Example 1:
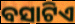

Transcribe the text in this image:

ବସାଟିଏ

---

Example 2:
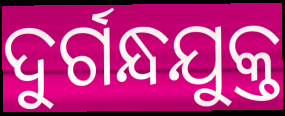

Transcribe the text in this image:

ଦୁର୍ଗନ୍ଧଯୁକ୍ତ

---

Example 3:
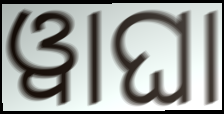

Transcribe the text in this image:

ୱାଘା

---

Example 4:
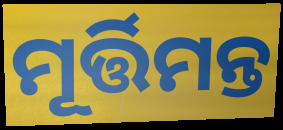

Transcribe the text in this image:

ମୂର୍ତ୍ତିମନ୍ତ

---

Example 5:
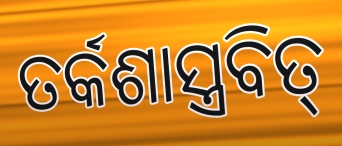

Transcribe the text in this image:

ତର୍କଶାସ୍ତ୍ରବିତ୍